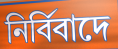
নিৰ্বিবাদে